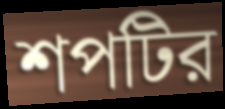
শপটির